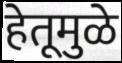
हेतूमुळे